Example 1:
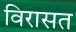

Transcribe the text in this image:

विरासत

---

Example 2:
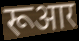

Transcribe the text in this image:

रूआर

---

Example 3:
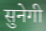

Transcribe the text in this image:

सुनेगी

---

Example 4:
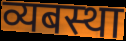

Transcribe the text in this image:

व्यबस्था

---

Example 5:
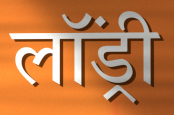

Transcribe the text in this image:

लॉंड्री